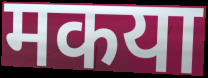
मकया